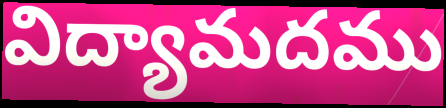
విద్యామదము